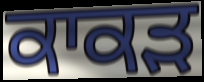
ਕਾਕੜ